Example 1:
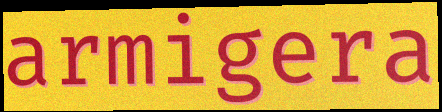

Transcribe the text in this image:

armigera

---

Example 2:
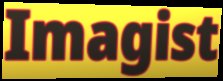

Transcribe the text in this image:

Imagist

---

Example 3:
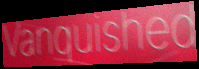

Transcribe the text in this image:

Vanquished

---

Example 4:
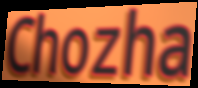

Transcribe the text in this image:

Chozha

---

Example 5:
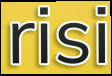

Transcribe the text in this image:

risi